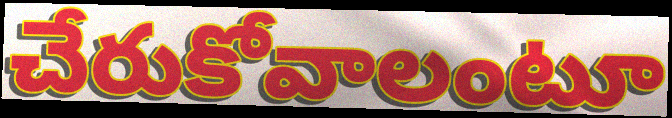
చేరుకోవాలంటూ